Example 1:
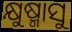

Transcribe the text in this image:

କ୍ଷୁଷ୍ମାସୁ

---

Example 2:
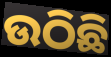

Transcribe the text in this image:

ଉଠିଛି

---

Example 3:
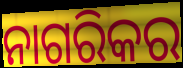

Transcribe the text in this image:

ନାଗରିକର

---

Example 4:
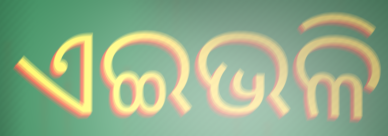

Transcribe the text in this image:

ଏଇଭଳି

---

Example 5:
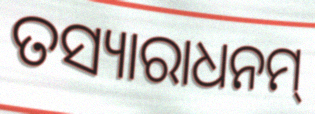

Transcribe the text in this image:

ତସ୍ୟାରାଧନମ୍